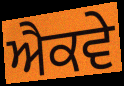
ਐਕਵੇ